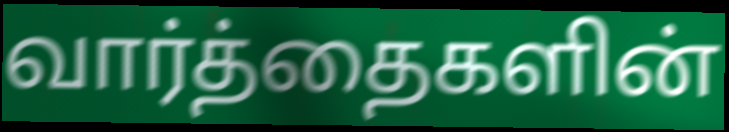
வார்த்தைகளின்